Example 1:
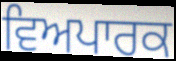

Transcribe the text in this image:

ਵਿਅਪਾਰਕ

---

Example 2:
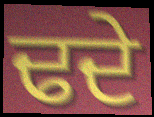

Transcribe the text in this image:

ਢਦੇ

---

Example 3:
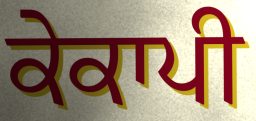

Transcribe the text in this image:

ਕੇਕਾਪੀ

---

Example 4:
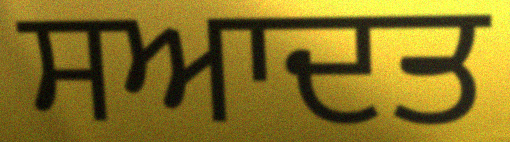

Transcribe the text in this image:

ਸਆਦਤ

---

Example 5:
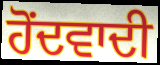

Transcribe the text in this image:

ਹੋਂਦਵਾਦੀ